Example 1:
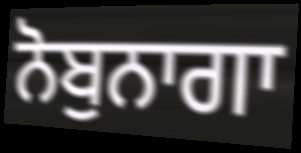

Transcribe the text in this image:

ਨੋਬੁਨਾਗਾ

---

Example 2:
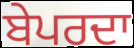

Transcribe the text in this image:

ਬੇਪਰਦਾ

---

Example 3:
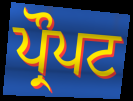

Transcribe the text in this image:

ਪ੍ਰੌਪਟ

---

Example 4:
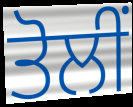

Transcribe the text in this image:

ਤੋਲੀਂ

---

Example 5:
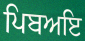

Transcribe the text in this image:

ਪਿਬਅਇ